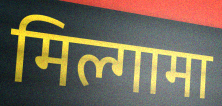
मिल्गामा